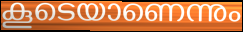
കൂടെയാണെന്നും